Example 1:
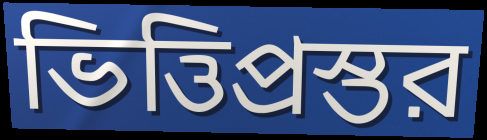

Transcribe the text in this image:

ভিত্তিপ্রস্তর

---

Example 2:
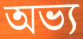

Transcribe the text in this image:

অভ্য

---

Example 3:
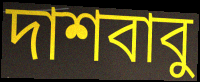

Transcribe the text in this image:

দাশবাবু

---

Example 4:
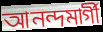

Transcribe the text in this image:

আনন্দমার্গী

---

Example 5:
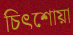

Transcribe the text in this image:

চিৎশোয়া